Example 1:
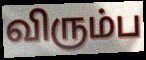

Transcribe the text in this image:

விரும்ப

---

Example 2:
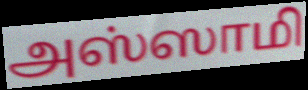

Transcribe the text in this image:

அஸ்ஸாமி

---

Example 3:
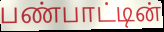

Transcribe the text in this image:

பண்பாட்டின்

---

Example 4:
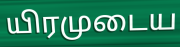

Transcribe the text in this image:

யிரமுடைய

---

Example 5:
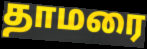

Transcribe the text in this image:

தாமரை